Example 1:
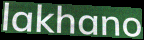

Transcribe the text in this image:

lakhano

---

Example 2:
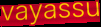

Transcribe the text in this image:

vayassu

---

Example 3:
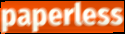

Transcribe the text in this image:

paperless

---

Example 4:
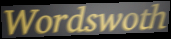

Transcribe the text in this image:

Wordswoth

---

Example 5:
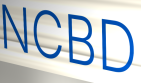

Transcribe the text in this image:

NCBD